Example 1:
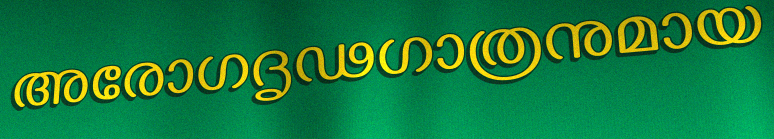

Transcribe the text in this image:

അരോഗദൃഢഗാത്രനുമായ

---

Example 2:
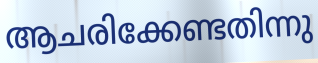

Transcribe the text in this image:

ആചരിക്കേണ്ടതിന്നു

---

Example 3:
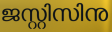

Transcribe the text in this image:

ജസ്റ്റിസിനു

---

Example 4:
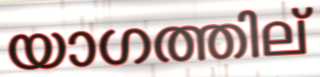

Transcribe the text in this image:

യാഗത്തില്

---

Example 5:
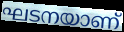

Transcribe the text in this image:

ഘടനയാണ്